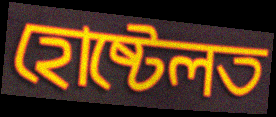
হোষ্টেলত